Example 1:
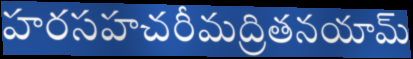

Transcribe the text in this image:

హరసహచరీమద్రితనయామ్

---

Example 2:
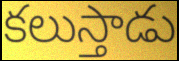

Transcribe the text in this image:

కలుస్తాడు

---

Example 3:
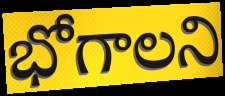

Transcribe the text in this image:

భోగాలని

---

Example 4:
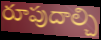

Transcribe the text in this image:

రూపుదాల్చి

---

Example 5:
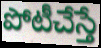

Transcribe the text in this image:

పోటీచేస్తే